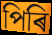
পিৰি